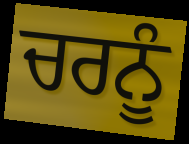
ਚਰਨੂੰ